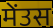
मेंउस